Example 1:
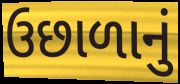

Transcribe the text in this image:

ઉછાળાનું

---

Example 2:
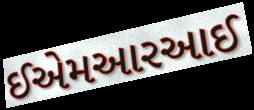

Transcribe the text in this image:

ઈએમઆરઆઈ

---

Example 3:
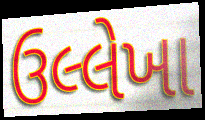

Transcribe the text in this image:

ઉલ્લેખા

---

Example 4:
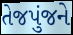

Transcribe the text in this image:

તેજપુંજને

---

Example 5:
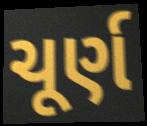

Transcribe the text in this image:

ચૂર્ણ